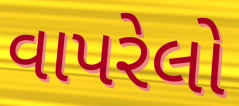
વાપરેલો